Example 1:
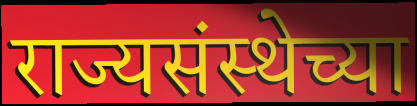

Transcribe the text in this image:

राज्यसंस्थेच्या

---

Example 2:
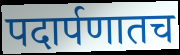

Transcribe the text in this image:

पदार्पणातच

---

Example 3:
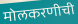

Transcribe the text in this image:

मोलकरणीची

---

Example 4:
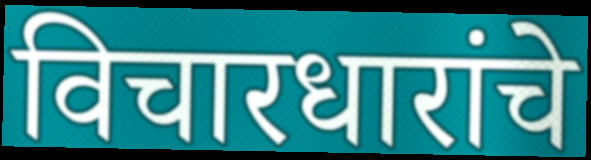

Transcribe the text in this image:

विचारधारांचे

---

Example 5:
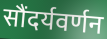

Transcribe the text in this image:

सौंदर्यवर्णन